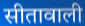
सीतावाली